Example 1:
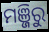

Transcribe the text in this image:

ମଞ୍ଜିରୁ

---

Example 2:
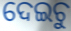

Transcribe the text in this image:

ଦେଇଚୁ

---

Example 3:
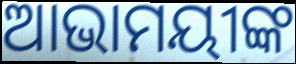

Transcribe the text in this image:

ଆଭାମୟୀଙ୍କ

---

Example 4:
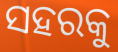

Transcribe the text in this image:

ସହରକୁ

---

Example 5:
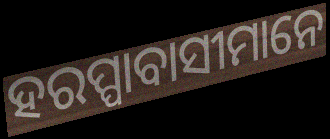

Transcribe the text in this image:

ହରପ୍ପାବାସୀମାନେ